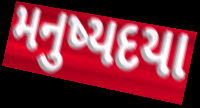
મનુષ્યદયા